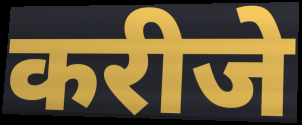
करीजे